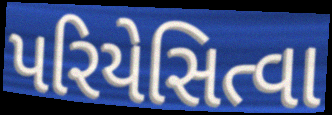
પરિયેસિત્વા